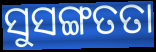
ସୁସଙ୍ଗତତା